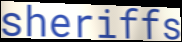
sheriffs